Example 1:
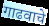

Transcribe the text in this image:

गाढवाचे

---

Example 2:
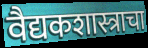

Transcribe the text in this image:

वैद्यकशास्त्राचा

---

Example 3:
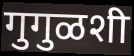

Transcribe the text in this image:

गुगुळशी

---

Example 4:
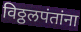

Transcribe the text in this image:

विठ्ठलपंतांना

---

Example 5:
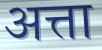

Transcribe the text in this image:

अत्ता